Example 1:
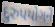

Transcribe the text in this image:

દુરુપયોગને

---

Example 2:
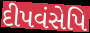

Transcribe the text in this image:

દીપવંસેપિ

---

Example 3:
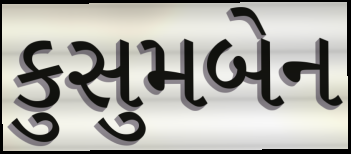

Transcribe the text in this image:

કુસુમબેન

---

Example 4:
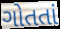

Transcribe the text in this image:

ગોતતાં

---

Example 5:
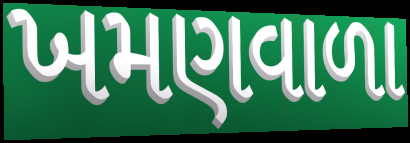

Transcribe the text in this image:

ખમણવાળા